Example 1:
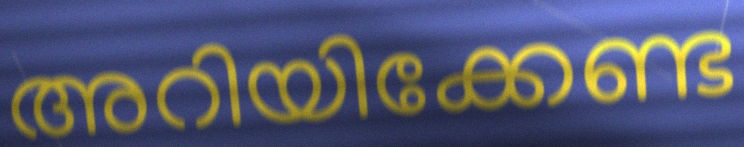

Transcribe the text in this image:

അറിയിക്കേണ്ട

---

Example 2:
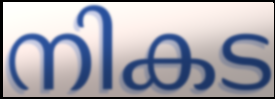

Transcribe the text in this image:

നികട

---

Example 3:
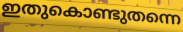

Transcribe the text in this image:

ഇതുകൊണ്ടുതന്നെ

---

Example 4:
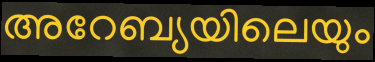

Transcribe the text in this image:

അറേബ്യയിലെയും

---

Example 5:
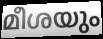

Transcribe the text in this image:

മീശയും